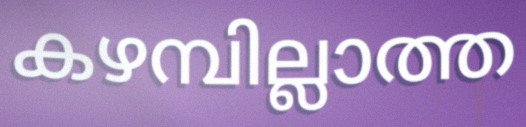
കഴമ്പില്ലാത്ത